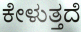
ಕೇಳುತ್ತದೆ